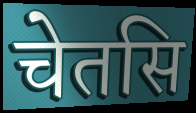
चेतसि